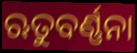
ଋତୁବର୍ଣ୍ଣନା